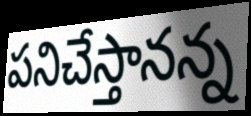
పనిచేస్తానన్న